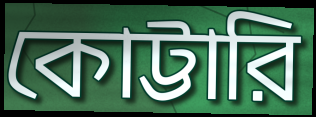
কোট্টারি